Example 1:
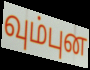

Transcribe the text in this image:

வும்புன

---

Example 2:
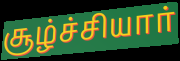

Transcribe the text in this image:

சூழ்ச்சியார்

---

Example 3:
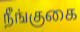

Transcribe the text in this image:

நீங்குகை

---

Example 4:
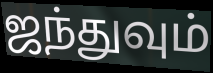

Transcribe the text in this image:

ஜந்துவும்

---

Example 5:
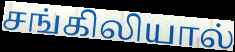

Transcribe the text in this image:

சங்கிலியால்